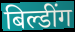
बिल्डींग